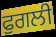
ਫੁਗਲੀ